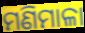
ମଣିମାଳା